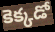
కెక్కడో